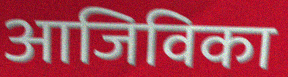
आजिविका